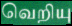
வெறியு